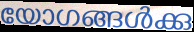
യോഗങ്ങൾക്കു